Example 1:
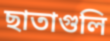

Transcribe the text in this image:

ছাতাগুলি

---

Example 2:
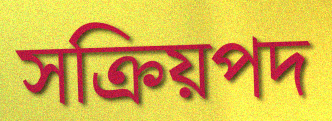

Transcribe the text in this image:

সক্রিয়পদ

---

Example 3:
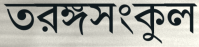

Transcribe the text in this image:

তরঙ্গসংকুল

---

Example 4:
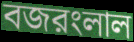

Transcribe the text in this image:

বজরংলাল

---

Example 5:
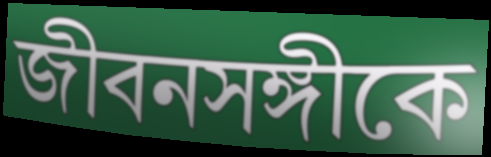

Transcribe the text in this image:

জীবনসঙ্গীকে